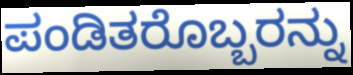
ಪಂಡಿತರೊಬ್ಬರನ್ನು